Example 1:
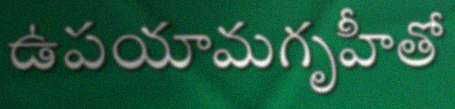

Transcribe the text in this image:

ఉపయామగృహీతో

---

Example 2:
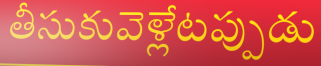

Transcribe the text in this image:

తీసుకువెళ్లేటప్పుడు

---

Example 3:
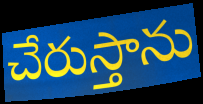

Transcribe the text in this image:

చేరుస్తాను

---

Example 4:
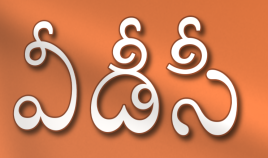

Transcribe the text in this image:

వీడీసీ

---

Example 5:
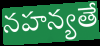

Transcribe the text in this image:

నహన్యతే